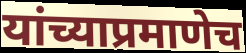
यांच्याप्रमाणेच